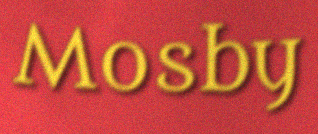
Mosby